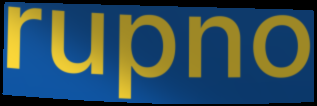
rupno